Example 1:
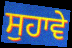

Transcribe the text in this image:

ਸੁਹਾਵੇ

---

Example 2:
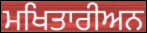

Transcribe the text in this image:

ਮਖਿਤਾਰੀਅਨ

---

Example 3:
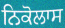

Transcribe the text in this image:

ਨਿਕੋਲਾਸ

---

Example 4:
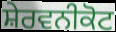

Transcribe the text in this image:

ਸ਼ੇਰਵਨੀਕੋਟ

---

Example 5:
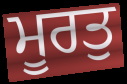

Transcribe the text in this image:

ਮੂਰਤੁ